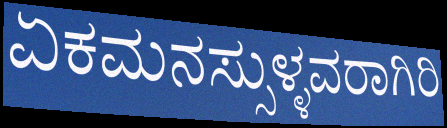
ಏಕಮನಸ್ಸುಳ್ಳವರಾಗಿರಿ